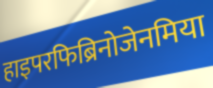
हाइपरफिब्रिनोजेनमिया